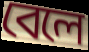
বেলে